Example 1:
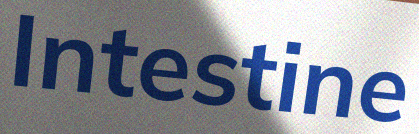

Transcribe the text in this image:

Intestine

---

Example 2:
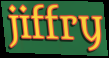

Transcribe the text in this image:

jiffry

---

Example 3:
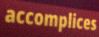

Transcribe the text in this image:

accomplices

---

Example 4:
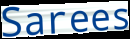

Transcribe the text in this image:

Sarees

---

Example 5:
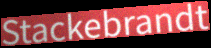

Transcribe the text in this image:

Stackebrandt